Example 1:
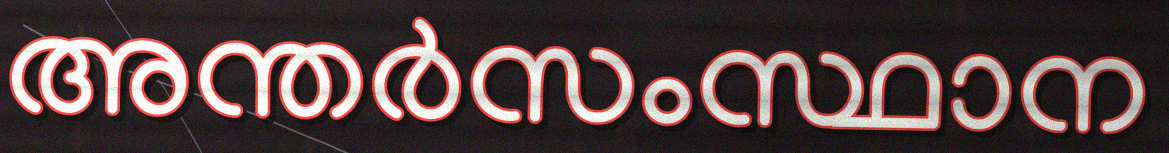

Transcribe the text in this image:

അന്തർസംസ്ഥാന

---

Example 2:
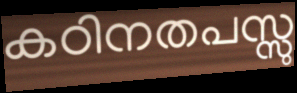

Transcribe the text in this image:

കഠിനതപസ്സു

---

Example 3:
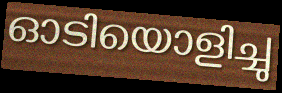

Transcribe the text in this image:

ഓടിയൊളിച്ചു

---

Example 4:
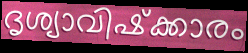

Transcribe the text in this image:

ദൃശ്യാവിഷ്‌ക്കാരം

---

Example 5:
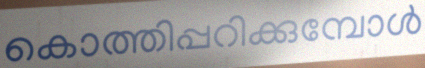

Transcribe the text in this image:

കൊത്തിപ്പറിക്കുമ്പോൾ